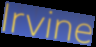
Irvine